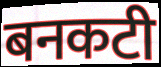
बनकटी